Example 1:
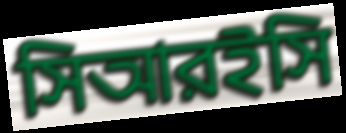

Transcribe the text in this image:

সিআরইসি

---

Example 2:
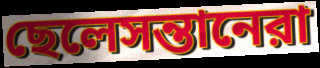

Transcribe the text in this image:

ছেলেসন্তানেরা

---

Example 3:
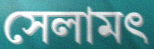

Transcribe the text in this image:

সেলামৎ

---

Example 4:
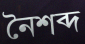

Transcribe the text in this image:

নৈশব্দ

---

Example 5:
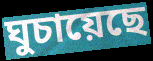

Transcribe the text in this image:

ঘুচায়েছে